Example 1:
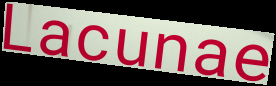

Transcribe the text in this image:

Lacunae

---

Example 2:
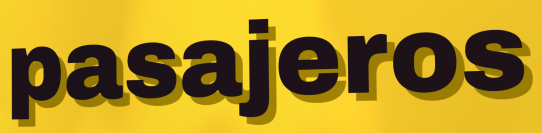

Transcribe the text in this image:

pasajeros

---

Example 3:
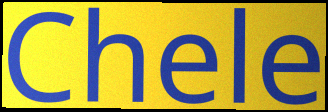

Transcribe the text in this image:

Chele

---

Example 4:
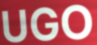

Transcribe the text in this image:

UGO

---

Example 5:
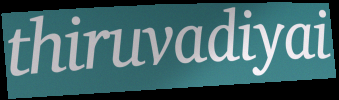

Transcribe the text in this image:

thiruvadiyai